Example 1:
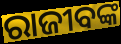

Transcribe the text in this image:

ରାଜୀବଙ୍କ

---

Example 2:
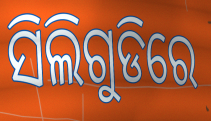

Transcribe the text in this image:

ସିଲିଗୁଡିରେ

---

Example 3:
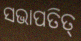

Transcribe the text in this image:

ସଭାପତିତ୍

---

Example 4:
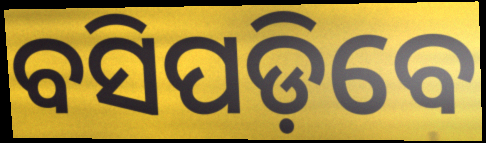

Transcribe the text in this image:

ବସିପଡ଼ିବେ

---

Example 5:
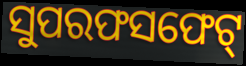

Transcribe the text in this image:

ସୁପରଫସଫେଟ୍